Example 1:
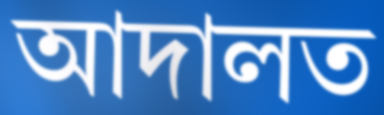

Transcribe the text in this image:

আদালত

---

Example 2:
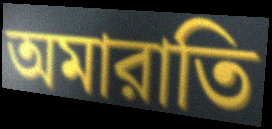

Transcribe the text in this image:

অমারাতি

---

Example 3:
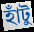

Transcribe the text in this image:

হাঁটু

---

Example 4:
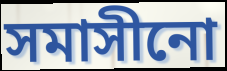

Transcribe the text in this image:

সমাসীনো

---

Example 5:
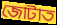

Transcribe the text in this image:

জোটাত